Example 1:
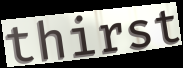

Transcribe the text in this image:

thirst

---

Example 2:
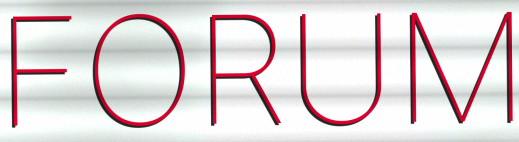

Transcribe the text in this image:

FORUM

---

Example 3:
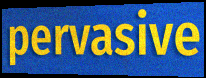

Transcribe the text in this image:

pervasive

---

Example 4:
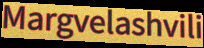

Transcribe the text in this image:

Margvelashvili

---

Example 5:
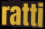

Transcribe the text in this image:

ratti